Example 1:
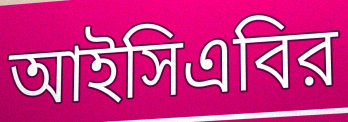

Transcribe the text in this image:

আইসিএবির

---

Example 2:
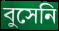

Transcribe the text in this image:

বুসেনি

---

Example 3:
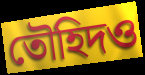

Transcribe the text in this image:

তৌহিদও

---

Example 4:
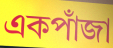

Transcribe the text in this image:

একপাঁজা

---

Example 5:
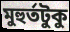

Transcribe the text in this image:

মুহুর্তটুকু